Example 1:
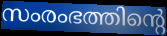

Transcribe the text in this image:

സംരംഭത്തിന്റെ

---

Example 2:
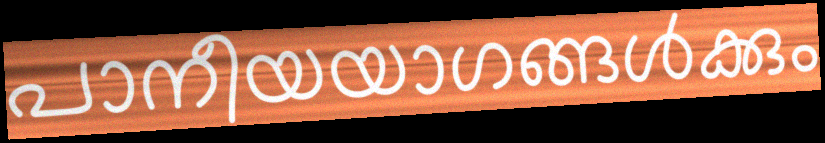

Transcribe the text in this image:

പാനീയയാഗങ്ങൾക്കും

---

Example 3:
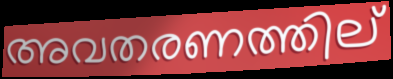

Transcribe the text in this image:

അവതരണത്തില്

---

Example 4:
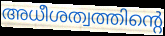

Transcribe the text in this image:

അധീശത്വത്തിന്റെ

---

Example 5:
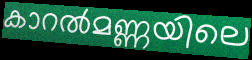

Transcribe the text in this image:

കാറൽമണ്ണയിലെ